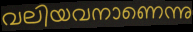
വലിയവനാണെന്നു